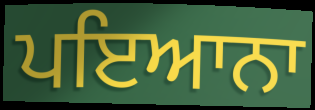
ਪਇਆਨਾ